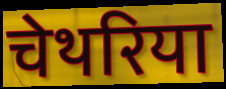
चेथरिया